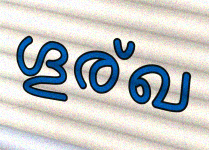
ഗൂര്ഖ